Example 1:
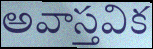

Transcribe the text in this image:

అవాస్తవిక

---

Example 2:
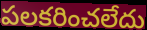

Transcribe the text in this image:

పలకరించలేదు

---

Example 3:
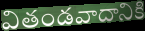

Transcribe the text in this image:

వితండవాదానికి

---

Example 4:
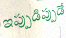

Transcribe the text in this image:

ఇప్పుడిప్పుడే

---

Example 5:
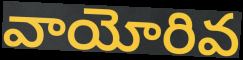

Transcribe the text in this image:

వాయోరివ